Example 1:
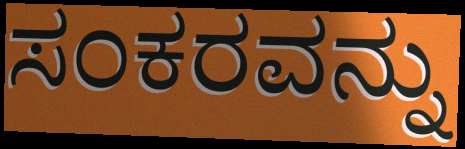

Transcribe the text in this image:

ಸಂಕರವನ್ನು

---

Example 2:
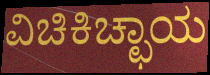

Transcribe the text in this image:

ವಿಚಿಕಿಚ್ಛಾಯ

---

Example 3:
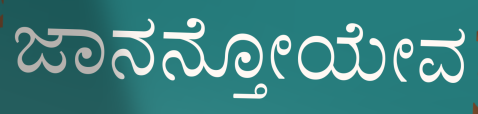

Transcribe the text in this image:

ಜಾನನ್ತೋಯೇವ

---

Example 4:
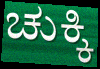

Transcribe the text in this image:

ಚುಕ್ಕಿ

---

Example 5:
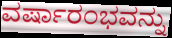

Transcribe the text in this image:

ವರ್ಷಾರಂಭವನ್ನು